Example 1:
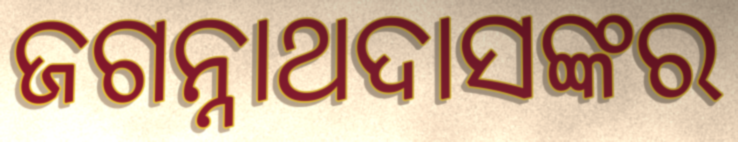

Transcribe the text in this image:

ଜଗନ୍ନାଥଦାସଙ୍କର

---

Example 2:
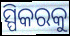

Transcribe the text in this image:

ସ୍ପିକରକୁ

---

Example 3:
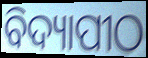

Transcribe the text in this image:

ବିଦ୍ୟାପୀଠ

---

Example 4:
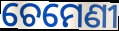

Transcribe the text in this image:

ଚେମେଣୀ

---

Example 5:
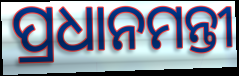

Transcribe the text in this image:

ପ୍ରଧାନମନ୍ତୀ